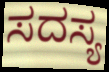
ಸದಸ್ಯ